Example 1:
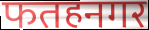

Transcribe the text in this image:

फतहनगर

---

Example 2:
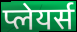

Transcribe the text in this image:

प्लेयर्स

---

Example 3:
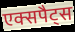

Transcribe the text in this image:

एक्सपैट्स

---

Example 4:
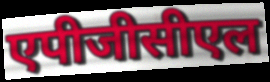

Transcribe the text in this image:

एपीजीसीएल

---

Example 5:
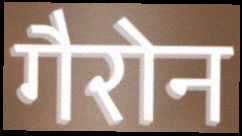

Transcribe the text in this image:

गैरोन